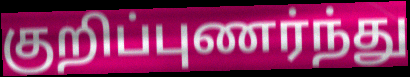
குறிப்புணர்ந்து